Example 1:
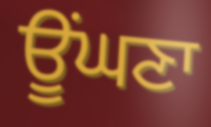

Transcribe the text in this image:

ਊਂਘਣਾ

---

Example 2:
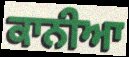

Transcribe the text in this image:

ਕਾਨੀਆ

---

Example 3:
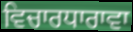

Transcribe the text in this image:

ਵਿਚਾਰਧਾਰਾਵਾ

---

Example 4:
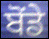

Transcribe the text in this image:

ਬੋਂਡੇ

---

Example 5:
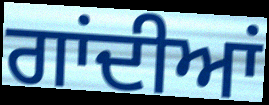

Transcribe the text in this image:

ਗਾਂਦੀਆਂ